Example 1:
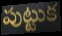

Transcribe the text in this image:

పుట్టుక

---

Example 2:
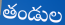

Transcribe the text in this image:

తండుల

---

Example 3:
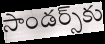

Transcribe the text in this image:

సాండర్స్‌కు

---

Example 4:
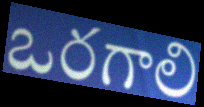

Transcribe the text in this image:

ఒరగాలి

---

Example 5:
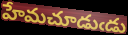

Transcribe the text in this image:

హేమచూడుఁడు